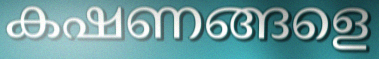
കഷണങ്ങളെ